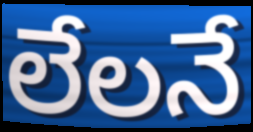
లేలనే